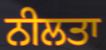
ਨੀਲਤਾ